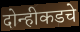
दोन्हीकडचे